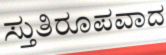
ಸ್ತುತಿರೂಪವಾದ